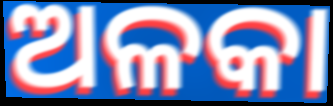
ଅଳକା